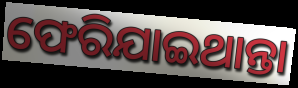
ଫେରିଯାଇଥାନ୍ତା